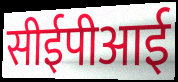
सीईपीआई